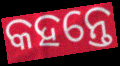
କହନ୍ତେ